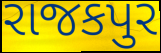
રાજકપુર